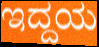
ಇದ್ದಯ